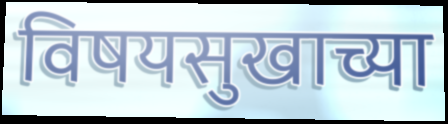
विषयसुखाच्या